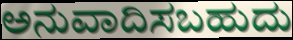
ಅನುವಾದಿಸಬಹುದು